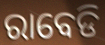
ରାବେଡି